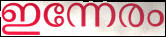
ഇന്നേരം